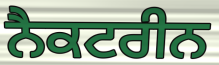
ਨੈਕਟਰੀਨ